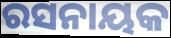
ରସନାୟକ